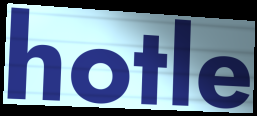
hotle